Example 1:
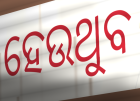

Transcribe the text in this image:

ହେଉଥୁବ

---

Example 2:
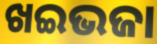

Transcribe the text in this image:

ଖଇଭଜା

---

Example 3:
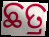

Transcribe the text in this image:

ଛତ୍ର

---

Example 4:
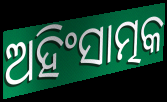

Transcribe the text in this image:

ଅହିଂସାତ୍ମକ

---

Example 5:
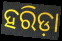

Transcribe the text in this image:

ହରିଡ଼ା